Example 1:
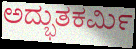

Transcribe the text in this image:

ಅದ್ಭುತಕರ್ಮಿ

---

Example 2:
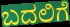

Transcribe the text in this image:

ಬದಲಿಗೆ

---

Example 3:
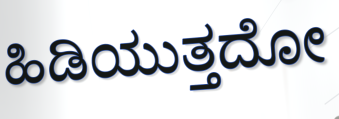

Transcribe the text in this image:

ಹಿಡಿಯುತ್ತದೋ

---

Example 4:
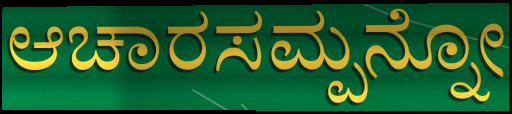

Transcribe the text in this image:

ಆಚಾರಸಮ್ಪನ್ನೋ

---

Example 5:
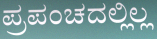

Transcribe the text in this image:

ಪ್ರಪಂಚದಲ್ಲಿಲ್ಲ